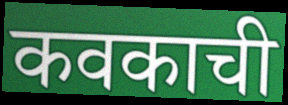
कवकाची